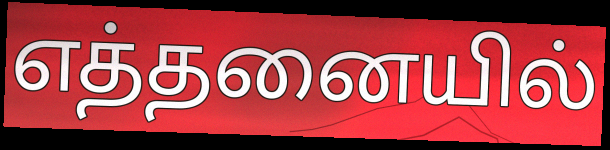
எத்தனையில்